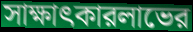
সাক্ষাৎকারলাভের